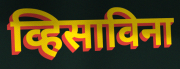
व्हिसाविना